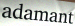
adamant